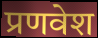
प्रणवेश